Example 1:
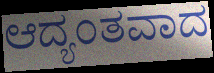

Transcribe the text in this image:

ಆದ್ಯಂತವಾದ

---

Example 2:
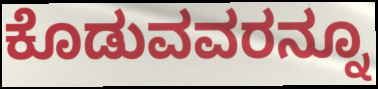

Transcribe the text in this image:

ಕೊಡುವವರನ್ನೂ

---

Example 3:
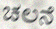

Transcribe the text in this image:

ಚಲನೆ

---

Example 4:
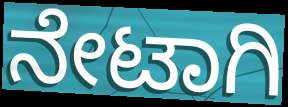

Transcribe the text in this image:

ನೇಟಾಗಿ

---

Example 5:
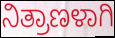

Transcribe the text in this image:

ನಿತ್ರಾಣಳಾಗಿ